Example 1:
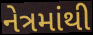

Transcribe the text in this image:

નેત્રમાંથી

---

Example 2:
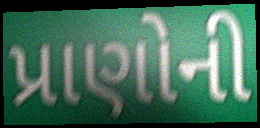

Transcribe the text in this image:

પ્રાણોની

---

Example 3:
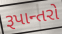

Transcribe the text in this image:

રૂપાન્તરો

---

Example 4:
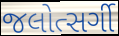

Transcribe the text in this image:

જલોત્સર્ગી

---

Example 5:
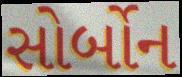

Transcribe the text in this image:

સોર્બોન